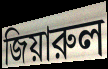
জিয়ারুল